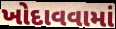
ખોદાવવામાં